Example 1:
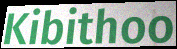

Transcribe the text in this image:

Kibithoo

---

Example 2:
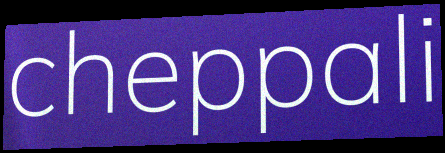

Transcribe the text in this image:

cheppali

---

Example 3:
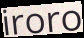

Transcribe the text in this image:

iroro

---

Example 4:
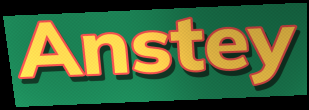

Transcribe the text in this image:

Anstey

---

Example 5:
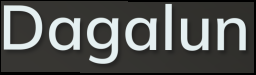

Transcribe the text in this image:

Dagalun